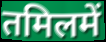
तमिलमें